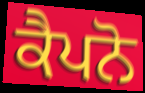
ਕੈਪਨੋ